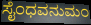
ಸೈಂಧವನುಮಂ